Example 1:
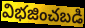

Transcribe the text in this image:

విభజించబడి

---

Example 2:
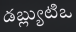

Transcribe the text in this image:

డబ్ల్యుటిఒ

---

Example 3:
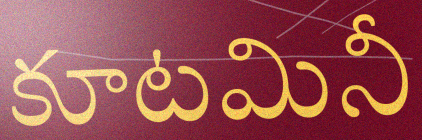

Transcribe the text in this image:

కూటమినీ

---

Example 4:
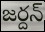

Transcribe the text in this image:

జర్దన్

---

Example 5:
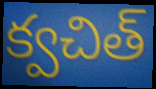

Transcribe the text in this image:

క్వచిత్